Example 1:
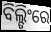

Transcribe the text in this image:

ବିଲ୍ଡିଂରେ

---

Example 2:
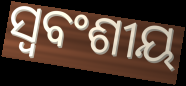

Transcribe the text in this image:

ସ୍ଵବଂଶୀୟ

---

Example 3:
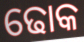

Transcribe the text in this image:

ଢୋକ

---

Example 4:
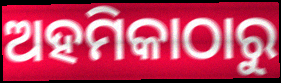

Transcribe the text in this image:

ଅହମିକାଠାରୁ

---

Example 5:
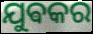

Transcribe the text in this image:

ଯୁଵକର